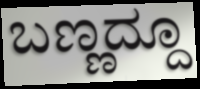
ಬಣ್ಣದ್ದೂ